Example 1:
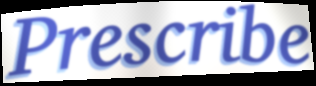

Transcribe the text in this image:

Prescribe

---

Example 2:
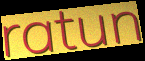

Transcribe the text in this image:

ratun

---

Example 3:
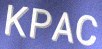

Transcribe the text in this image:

KPAC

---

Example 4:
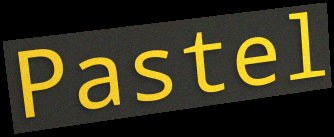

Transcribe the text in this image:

Pastel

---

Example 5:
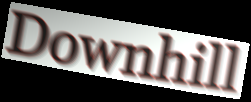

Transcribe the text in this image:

Downhill